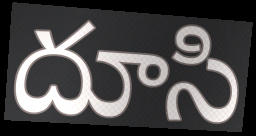
దూసి